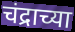
चंद्राच्या